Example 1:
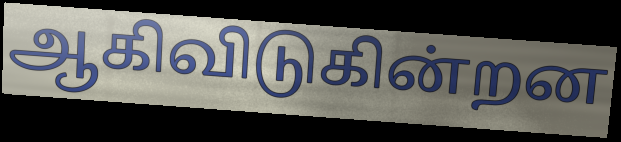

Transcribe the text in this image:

ஆகிவிடுகின்றன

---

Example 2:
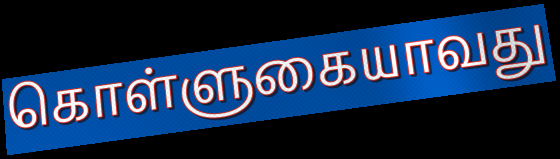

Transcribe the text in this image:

கொள்ளுகையாவது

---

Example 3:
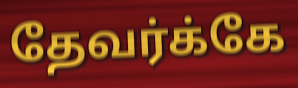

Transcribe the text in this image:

தேவர்க்கே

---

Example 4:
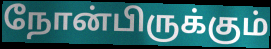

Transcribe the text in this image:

நோன்பிருக்கும்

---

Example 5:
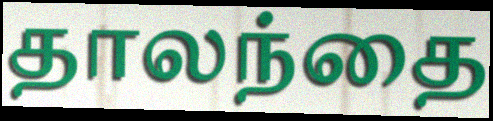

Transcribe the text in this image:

தாலந்தை